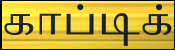
காப்டிக்